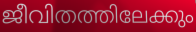
ജീവിതത്തിലേക്കും